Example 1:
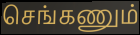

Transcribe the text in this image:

செங்கணும்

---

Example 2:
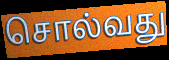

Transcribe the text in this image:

சொல்வது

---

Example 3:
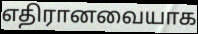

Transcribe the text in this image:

எதிரானவையாக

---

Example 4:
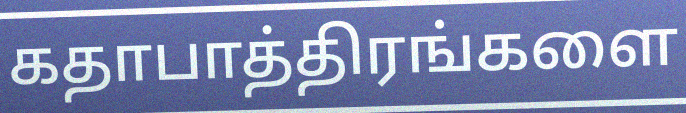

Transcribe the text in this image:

கதாபாத்திரங்களை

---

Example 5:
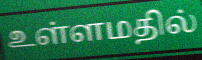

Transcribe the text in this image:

உள்ளமதில்